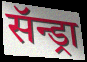
सॅन्ड्रा